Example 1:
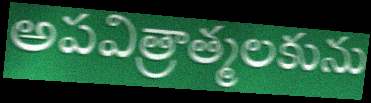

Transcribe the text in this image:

అపవిత్రాత్మలకును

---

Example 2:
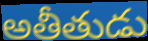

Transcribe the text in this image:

అతీతుడు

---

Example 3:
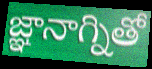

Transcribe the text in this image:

జ్ఞానాగ్నితో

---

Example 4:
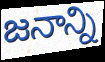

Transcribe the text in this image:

జనాన్ని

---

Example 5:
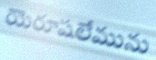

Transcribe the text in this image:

యెరూషలేమును